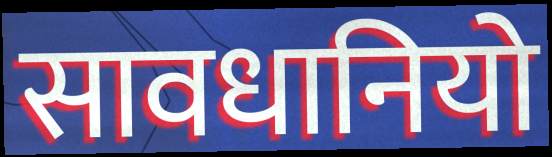
सावधानियो